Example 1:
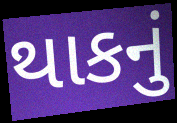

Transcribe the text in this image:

થાકનું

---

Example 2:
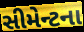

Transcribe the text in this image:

સીમેન્ટના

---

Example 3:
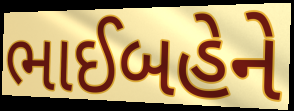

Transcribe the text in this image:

ભાઈબહેને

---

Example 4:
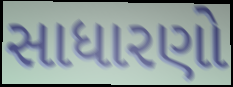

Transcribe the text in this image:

સાધારણો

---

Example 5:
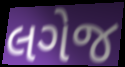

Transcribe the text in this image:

લગેજ